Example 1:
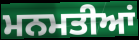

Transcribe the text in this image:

ਮਨਮਤੀਆਂ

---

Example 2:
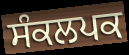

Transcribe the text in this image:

ਸੰਕਲਪਕ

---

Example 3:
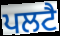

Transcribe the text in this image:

ਪਲਟੈ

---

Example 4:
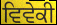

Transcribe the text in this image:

ਵਿਵੇਕੀ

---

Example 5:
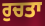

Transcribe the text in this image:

ਰੁਚਤਾ